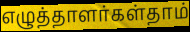
எழுத்தாளர்கள்தாம்